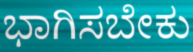
ಭಾಗಿಸಬೇಕು